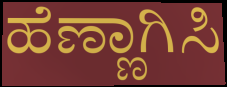
ಹೆಣ್ಣಾಗಿಸಿ